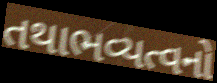
તથાભવ્યત્વનો